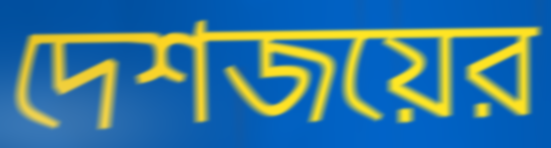
দেশজয়ের